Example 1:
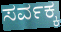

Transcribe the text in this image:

ಸರ್ವಕ್ಕ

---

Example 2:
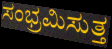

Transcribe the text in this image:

ಸಂಭ್ರಮಿಸುತ್ತ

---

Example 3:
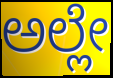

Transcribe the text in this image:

ಅಲ್ಲೇ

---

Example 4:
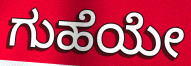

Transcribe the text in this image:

ಗುಹೆಯೇ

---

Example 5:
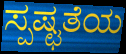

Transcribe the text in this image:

ಸ್ಪಷ್ಟತೆಯ